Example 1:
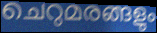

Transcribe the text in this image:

ചെറുമരങ്ങളും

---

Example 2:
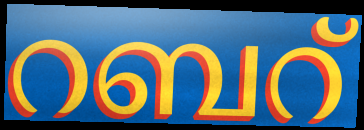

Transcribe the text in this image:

റബറ്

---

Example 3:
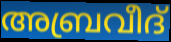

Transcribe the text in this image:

അബ്രവീദ്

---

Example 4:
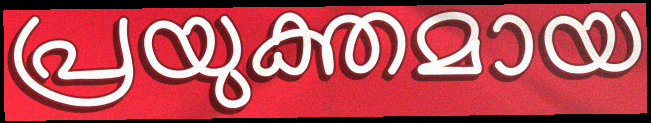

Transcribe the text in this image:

പ്രയുക്തമായ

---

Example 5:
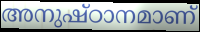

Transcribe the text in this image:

അനുഷ്ഠാനമാണ്